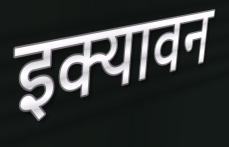
इक्यावन